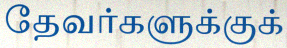
தேவர்களுக்குக்